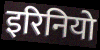
इरिनियो